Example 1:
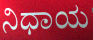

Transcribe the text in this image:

ನಿಧಾಯ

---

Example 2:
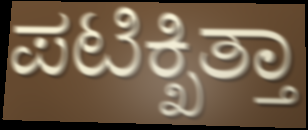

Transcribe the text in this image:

ಪಟಿಕ್ಖಿತ್ತಾ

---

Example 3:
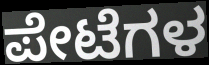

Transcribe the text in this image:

ಪೇಟೆಗಳ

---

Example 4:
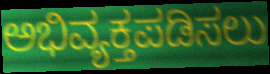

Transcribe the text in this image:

ಅಭಿವ್ಯಕ್ತಪಡಿಸಲು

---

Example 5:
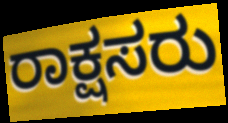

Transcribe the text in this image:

ರಾಕ್ಷಸರು